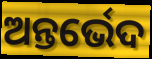
ଅନ୍ତର୍ଭେଦ